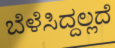
ಬೆಳೆಸಿದ್ದಲ್ಲದೆ